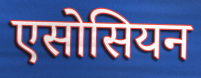
एसोसियन